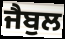
ਜੈਬੁਲ